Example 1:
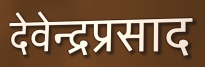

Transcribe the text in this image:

देवेन्द्रप्रसाद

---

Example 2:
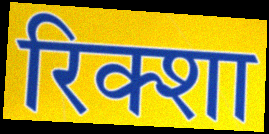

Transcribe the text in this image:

रिक्शा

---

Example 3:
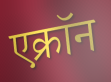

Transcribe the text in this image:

एक्रॉन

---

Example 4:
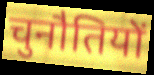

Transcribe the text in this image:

चुनौतियों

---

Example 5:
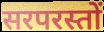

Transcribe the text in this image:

सरपरस्तों